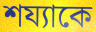
শয্যাকে